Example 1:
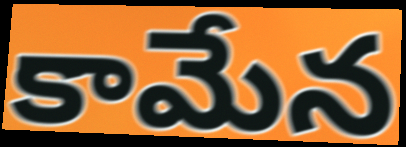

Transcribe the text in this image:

కామేన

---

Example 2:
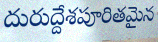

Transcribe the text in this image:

దురుద్దేశపూరితమైన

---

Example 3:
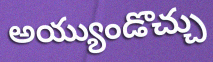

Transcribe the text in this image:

అయ్యుండొచ్చు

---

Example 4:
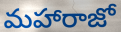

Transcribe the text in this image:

మహారాజో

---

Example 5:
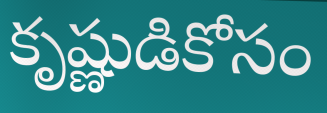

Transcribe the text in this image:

కృష్ణుడికోసం